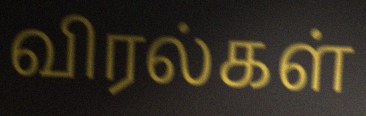
விரல்கள்